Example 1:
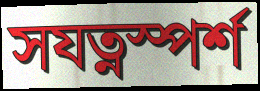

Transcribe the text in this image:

সযত্নস্পর্শ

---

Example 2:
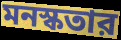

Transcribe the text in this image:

মনস্কতার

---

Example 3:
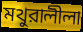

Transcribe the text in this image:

মথুরালীলা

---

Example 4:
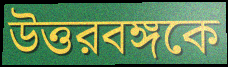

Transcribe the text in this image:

উত্তরবঙ্গকে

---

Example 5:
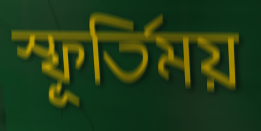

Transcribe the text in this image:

স্ফূর্তিময়